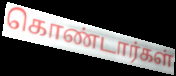
கொண்டார்கள்